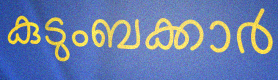
കുടുംബക്കാർ